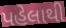
પહેલાથી